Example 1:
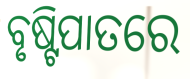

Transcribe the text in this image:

ବୃଷ୍ଟିପାତରେ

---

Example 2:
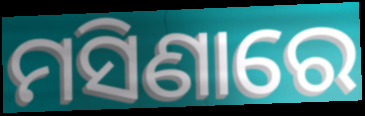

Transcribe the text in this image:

ମସିଣାରେ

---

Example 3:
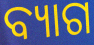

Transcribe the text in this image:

ବ୍ୟାଗ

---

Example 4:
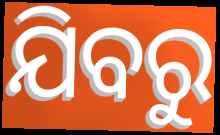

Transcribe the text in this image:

ଯିବରୁ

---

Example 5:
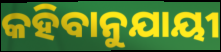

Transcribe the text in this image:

କହିବାନୁଯାୟୀ